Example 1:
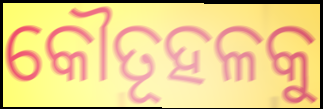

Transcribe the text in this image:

କୌତୂହଳକୁ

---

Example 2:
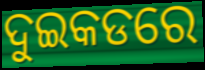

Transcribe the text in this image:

ଦୁଇକଡରେ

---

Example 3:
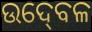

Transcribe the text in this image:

ଉଦ୍‍ବେଳ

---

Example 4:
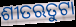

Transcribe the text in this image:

ଶୀତଋତୁଟା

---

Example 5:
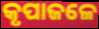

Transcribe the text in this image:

କୃପାଜଳେ